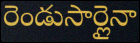
రెండుసార్లైనా